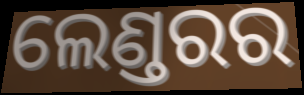
ଲେଣ୍ଡରର